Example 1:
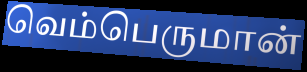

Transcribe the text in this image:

வெம்பெருமான்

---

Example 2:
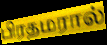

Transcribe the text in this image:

பிரதமரால்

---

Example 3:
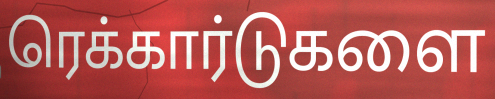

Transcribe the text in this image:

ரெக்கார்டுகளை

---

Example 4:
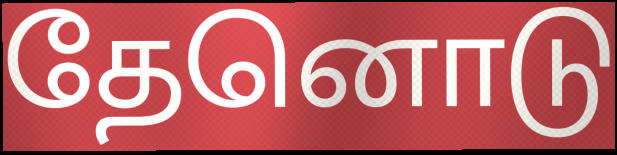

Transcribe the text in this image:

தேனொடு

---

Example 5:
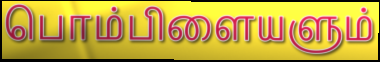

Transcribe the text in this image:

பொம்பிளையளும்